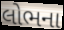
લોભના